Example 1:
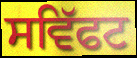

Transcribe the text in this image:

ਸਵਿੱਫਟ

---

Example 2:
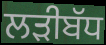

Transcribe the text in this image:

ਲੜੀਬੱਧ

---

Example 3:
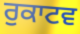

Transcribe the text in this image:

ਰੁਕਾਟਵ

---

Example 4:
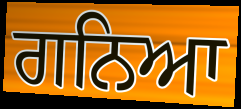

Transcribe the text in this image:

ਗਨਿਆ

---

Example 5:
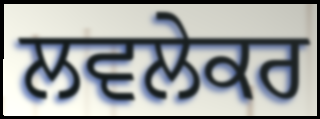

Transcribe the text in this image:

ਲਵਲੇਕਰ